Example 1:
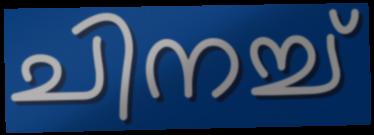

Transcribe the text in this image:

ചിനച്ച്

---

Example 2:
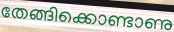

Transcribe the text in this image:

തേങ്ങിക്കൊണ്ടാണു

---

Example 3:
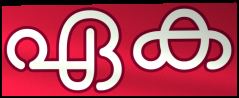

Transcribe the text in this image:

ഏക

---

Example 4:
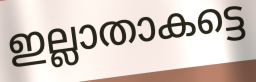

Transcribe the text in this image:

ഇല്ലാതാകട്ടെ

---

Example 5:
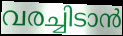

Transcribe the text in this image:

വരച്ചിടാൻ